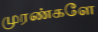
முரண்களே